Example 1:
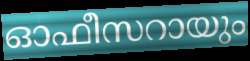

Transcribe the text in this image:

ഓഫീസറായും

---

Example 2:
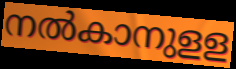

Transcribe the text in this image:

നൽകാനുളള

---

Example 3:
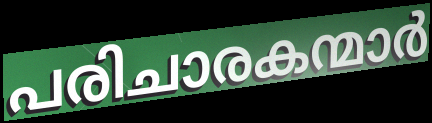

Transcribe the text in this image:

പരിചാരകന്മാർ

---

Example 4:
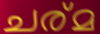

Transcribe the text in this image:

ചര്മ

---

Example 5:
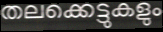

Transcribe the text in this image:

തലക്കെട്ടുകളും